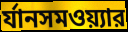
র্যানসমওয়্যার